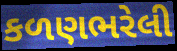
કળણભરેલી